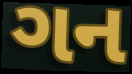
ગન